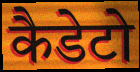
कैडेटो